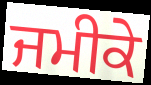
ਜਮੀਕੇ